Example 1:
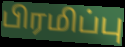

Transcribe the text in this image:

பிரமிப்பு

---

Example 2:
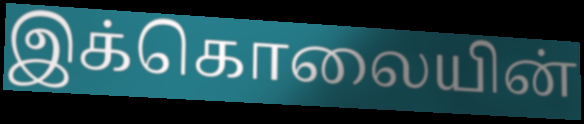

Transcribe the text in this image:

இக்கொலையின்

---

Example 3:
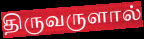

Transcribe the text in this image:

திருவருளால்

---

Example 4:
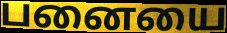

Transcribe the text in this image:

பனையை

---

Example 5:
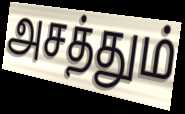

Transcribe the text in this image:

அசத்தும்